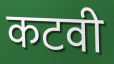
कटवी